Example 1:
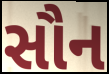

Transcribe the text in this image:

સૌન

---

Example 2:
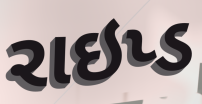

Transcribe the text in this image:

રાઇપ્ડ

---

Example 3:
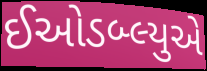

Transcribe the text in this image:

ઈઓડબ્લ્યુએ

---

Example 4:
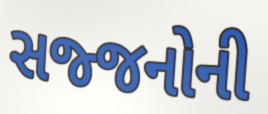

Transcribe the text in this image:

સજ્જનોની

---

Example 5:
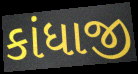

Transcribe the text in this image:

કાંધાજી